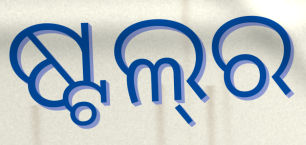
ଷ୍ଟଲ୍‌ର